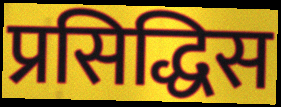
प्रसिद्धिस